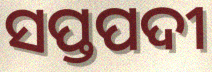
ସପ୍ତପଦୀ